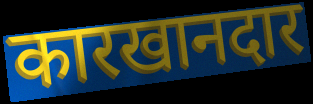
कारखानदार